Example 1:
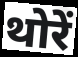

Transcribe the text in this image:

थोरें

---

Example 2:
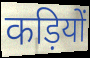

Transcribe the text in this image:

कड़ियों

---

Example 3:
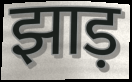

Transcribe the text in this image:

झाड़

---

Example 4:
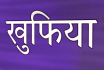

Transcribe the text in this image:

खुफिया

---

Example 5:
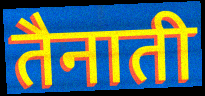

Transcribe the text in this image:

तैनाती